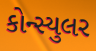
કોન્સ્યુલર